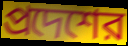
প্রদেশের